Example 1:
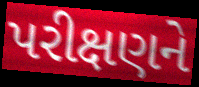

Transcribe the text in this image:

પરીક્ષણને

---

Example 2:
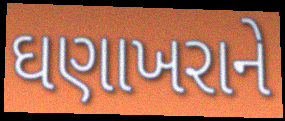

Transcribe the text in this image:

ઘણાખરાને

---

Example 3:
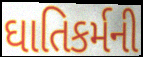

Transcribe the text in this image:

ઘાતિકર્મની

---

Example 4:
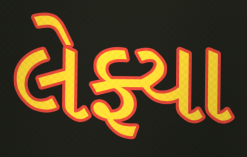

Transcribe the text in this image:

લેફ્યા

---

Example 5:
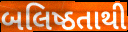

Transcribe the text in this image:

બલિષ્ઠતાથી